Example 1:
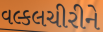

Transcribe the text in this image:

વલ્કલચીરીને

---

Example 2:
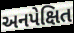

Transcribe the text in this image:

અનપેક્ષિત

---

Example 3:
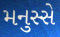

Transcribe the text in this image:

મનુસ્સે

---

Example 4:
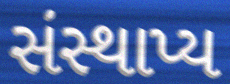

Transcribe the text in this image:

સંસ્થાપ્ય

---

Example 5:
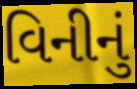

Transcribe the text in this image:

વિનીનું